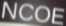
NCOE